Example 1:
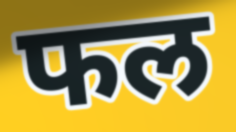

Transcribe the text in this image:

फल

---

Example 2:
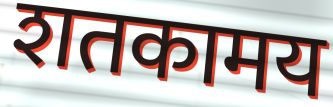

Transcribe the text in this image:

शतकामय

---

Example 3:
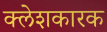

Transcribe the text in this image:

क्लेशकारक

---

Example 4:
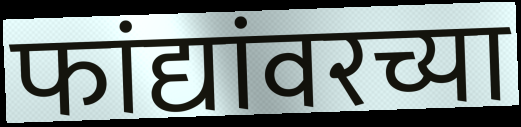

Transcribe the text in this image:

फांद्यांवरच्या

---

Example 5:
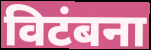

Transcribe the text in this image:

विटंबना